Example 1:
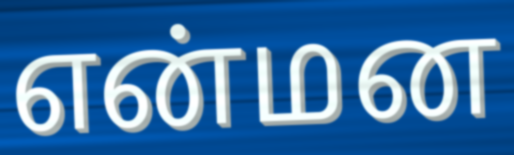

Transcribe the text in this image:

என்மன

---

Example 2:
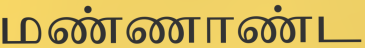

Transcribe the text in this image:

மண்ணாண்ட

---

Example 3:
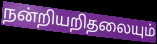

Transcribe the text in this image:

நன்றியறிதலையும்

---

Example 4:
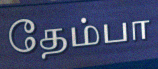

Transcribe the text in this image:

தேம்பா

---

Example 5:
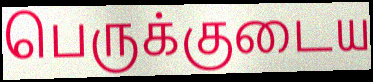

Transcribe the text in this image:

பெருக்குடைய